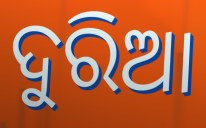
ଦୁରିଆ